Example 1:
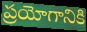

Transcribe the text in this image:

ప్రయోగానికి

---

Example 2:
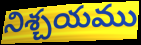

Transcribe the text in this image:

నిశ్చయము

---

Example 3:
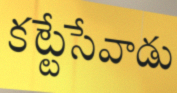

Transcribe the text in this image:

కట్టేసేవాడు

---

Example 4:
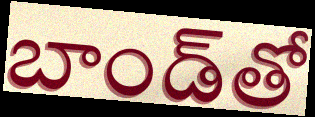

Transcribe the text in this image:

బాండ్‌తో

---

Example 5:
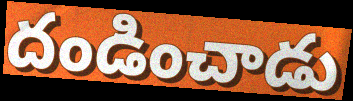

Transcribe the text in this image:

దండించాడు